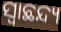
ସ୍ୱାଛନ୍ଦ୍ୟ